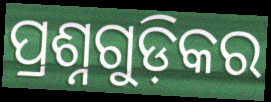
ପ୍ରଶ୍ନଗୁଡ଼ିକର